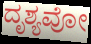
ದೃಶ್ಯವೋ